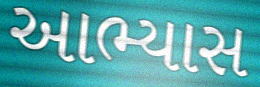
આભ્યાસ